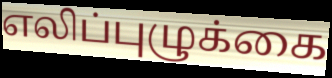
எலிப்புழுக்கை